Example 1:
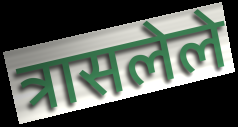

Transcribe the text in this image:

त्रासलेले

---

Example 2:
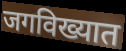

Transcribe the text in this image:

जगविख्यात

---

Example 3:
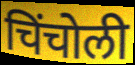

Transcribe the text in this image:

चिंचोली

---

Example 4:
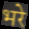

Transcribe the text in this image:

भरे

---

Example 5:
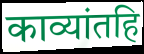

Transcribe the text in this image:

काव्यांतहि